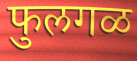
फुलगळ